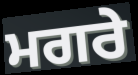
ਮਗਰੇ